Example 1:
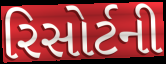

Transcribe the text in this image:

રિસોર્ટની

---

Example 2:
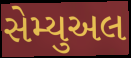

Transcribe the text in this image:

સેમ્યુઅલ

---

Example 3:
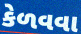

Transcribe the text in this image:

કેળવવા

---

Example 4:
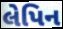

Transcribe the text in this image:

લેપિન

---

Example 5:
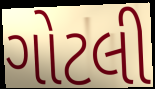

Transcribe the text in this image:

ગોટલી